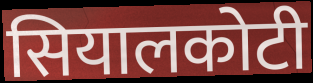
सियालकोटी